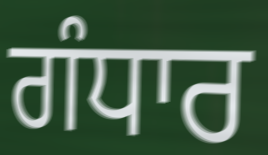
ਗੰਧਾਰ